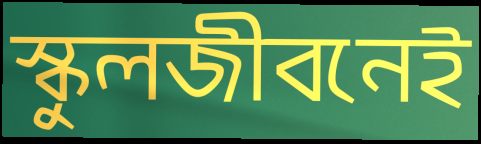
স্কুলজীবনেই